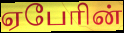
ஏபேரின்